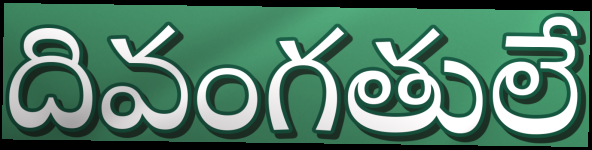
దివంగతులే